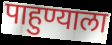
पाहुण्याला